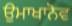
ਉਮਾਖਾਨੋਵ